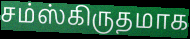
சம்ஸ்கிருதமாக